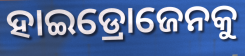
ହାଇଡ୍ରୋଜେନକୁ